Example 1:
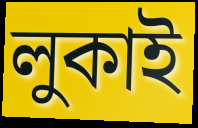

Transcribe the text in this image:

লুকাই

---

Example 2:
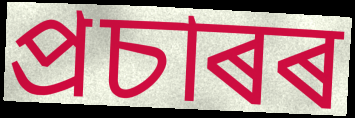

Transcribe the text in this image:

প্ৰচাৰৰ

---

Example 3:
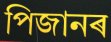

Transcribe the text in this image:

পিজানৰ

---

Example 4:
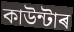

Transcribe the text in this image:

কাউন্টাৰ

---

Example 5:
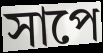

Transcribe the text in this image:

সাপে